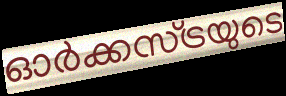
ഓർക്കസ്ട്രയുടെ